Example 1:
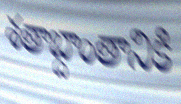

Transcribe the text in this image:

శతాబ్దాంతానికి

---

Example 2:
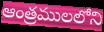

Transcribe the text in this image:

ఆంత్రములలోని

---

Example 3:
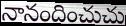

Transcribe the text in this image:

నానందించుచు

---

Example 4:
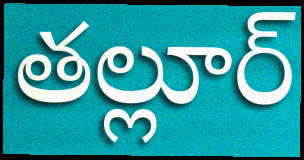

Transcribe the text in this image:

తల్లూర్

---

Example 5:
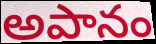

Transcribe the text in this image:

అపానం